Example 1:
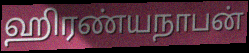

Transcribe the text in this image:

ஹிரண்யநாபன்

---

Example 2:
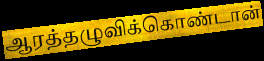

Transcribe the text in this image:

ஆரத்தழுவிக்கொண்டான்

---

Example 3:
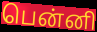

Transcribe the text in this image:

பென்னி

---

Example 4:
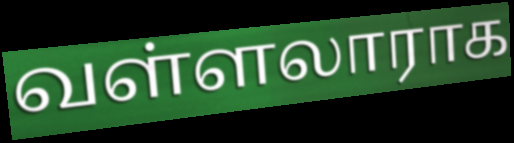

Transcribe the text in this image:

வள்ளலாராக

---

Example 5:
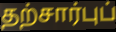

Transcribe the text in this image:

தற்சார்புப்